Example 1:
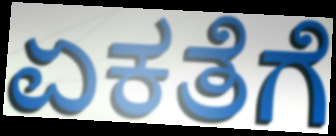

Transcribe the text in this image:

ಏಕತೆಗೆ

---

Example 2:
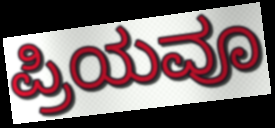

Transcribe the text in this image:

ಪ್ರಿಯವೂ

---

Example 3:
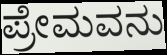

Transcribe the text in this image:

ಪ್ರೇಮವನು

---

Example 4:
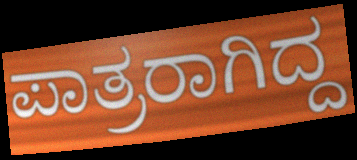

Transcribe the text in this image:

ಪಾತ್ರರಾಗಿದ್ದ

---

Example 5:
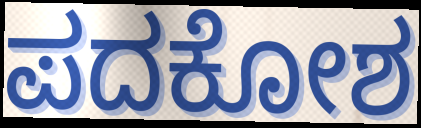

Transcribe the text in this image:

ಪದಕೋಶ